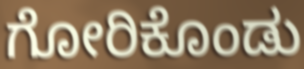
ಗೋರಿಕೊಂಡು